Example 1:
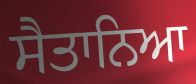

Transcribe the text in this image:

ਸੈਤਾਨਿਆ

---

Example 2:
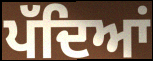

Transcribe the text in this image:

ਪੱਦਿਆਂ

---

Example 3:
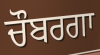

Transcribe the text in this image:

ਚੌਬਰਗਾ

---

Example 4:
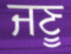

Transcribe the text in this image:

ਜਣੂ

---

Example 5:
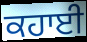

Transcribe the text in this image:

ਕਹਾਈ